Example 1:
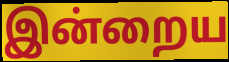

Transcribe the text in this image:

இன்றைய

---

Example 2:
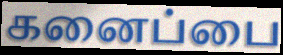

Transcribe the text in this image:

கனைப்பை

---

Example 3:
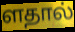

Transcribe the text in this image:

ளதால்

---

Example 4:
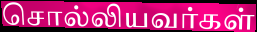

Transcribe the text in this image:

சொல்லியவர்கள்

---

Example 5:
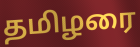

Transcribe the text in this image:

தமிழரை